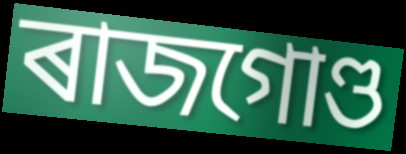
ৰাজগোণ্ড